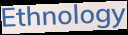
Ethnology